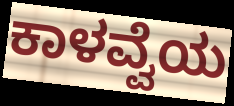
ಕಾಳವ್ವೆಯ